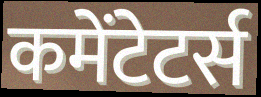
कमेंटेटर्स